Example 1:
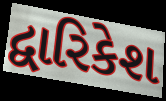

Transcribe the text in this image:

દ્વારિકેશ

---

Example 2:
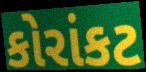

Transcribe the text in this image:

કોરાંકટ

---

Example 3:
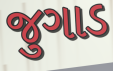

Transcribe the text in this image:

જુગાડ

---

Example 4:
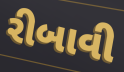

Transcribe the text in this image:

રીબાવી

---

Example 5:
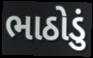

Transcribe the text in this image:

ભાઠોડું